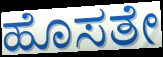
ಹೊಸತೇ